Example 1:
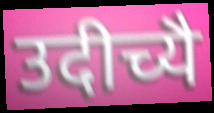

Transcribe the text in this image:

उदीच्यै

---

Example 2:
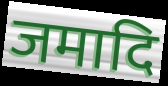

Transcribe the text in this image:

जमादि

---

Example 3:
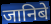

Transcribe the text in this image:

जानिबे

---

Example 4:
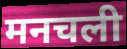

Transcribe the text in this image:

मनचली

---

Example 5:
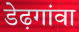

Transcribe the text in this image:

डेढ़गांवा